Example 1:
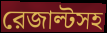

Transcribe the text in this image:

রেজাল্টসহ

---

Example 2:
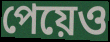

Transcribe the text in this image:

পেয়েও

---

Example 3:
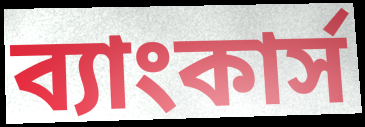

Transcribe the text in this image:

ব্যাংকার্স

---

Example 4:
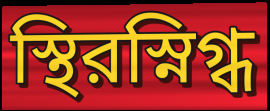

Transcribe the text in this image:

স্থিরস্নিগ্ধ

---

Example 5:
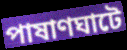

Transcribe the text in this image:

পাষাণঘাটে